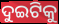
ଦୁଇଟିକୁ